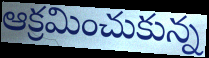
ఆక్రమించుకున్న